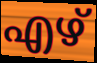
എഴ്